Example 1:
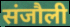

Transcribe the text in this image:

संजौली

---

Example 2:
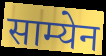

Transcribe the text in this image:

साम्येन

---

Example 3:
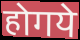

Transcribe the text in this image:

होगये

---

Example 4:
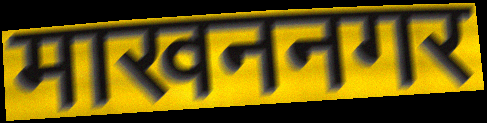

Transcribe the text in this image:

माखननगर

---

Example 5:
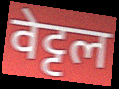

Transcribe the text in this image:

वेट्टल